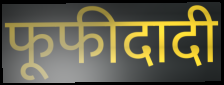
फूफीदादी